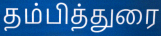
தம்பித்துரை